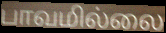
பாவமில்லை